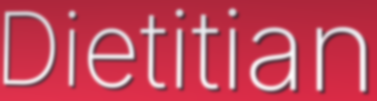
Dietitian